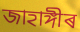
জাহাঙ্গীৰ